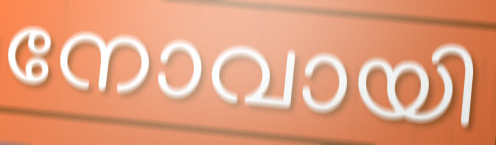
നോവായി